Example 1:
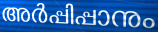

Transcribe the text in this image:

അർപ്പിപ്പാനും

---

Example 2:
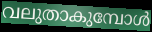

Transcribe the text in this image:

വലുതാകുമ്പോൾ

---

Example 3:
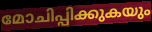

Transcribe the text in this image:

മോചിപ്പിക്കുകയും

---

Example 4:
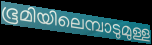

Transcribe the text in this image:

ഭൂമിയിലെമ്പാടുമുള്ള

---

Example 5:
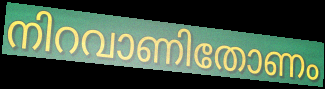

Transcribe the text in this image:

നിറവാണിതോണം